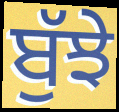
ਬੁੱਝੇ